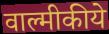
वाल्मीकीये